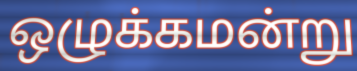
ஒழுக்கமன்று